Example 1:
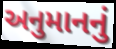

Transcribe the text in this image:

અનુમાનનું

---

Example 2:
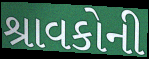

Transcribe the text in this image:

શ્રાવકોની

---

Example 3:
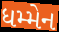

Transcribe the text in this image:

ધમ્મેન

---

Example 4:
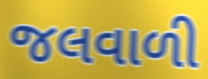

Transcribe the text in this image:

જલવાળી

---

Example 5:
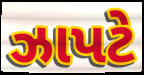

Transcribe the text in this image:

ઝાપટે